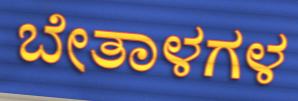
ಬೇತಾಳಗಳ